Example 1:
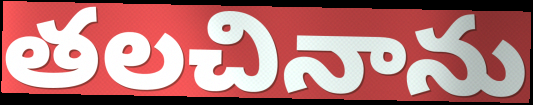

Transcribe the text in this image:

తలచినాను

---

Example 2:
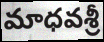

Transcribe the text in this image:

మాధవశ్రీ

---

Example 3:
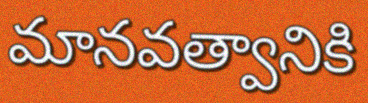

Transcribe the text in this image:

మానవత్వానికి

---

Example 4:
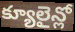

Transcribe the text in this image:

క్యూలైన్లో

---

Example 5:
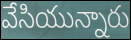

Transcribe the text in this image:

వేసియున్నారు